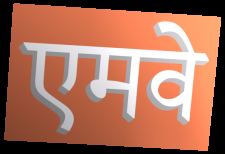
एमवे